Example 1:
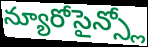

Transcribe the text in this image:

న్యూరోసైన్స్లో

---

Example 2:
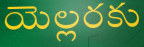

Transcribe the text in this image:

యెల్లరకు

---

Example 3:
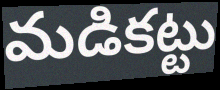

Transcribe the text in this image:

మడికట్టు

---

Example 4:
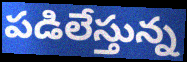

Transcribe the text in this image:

పడిలేస్తున్న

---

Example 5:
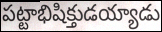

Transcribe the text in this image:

పట్టాభిషిక్తుడయ్యాడు